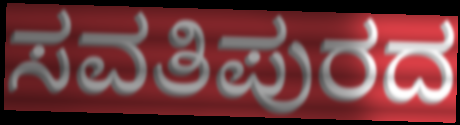
ಸವತಿಪುರದ